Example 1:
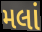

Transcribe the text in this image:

મલાં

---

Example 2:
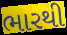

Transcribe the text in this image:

ભારથી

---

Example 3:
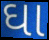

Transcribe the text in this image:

ઘા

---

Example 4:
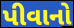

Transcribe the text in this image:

પીવાનો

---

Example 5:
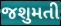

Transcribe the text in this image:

જશુમતી